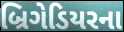
બ્રિગેડિયરના